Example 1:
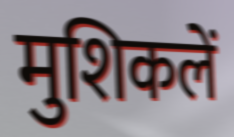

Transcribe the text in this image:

मुशिकलें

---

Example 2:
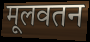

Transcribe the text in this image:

मूलवतन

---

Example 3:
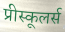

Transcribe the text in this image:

प्रीस्कूलर्स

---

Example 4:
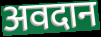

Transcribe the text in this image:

अवदान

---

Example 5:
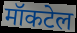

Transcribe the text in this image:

मॉकटेल